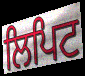
ਲਿਪਿਟ